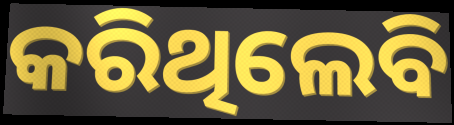
କରିଥିଲେବି